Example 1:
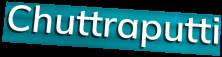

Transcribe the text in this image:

Chuttraputti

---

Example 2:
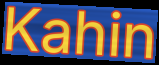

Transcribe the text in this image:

Kahin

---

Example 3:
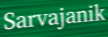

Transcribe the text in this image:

Sarvajanik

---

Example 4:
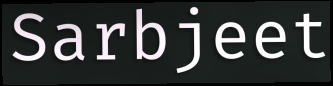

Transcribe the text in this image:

Sarbjeet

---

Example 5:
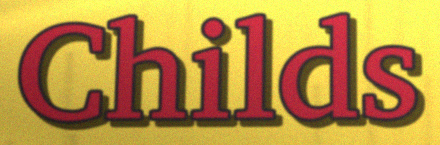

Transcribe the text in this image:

Childs